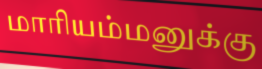
மாரியம்மனுக்கு